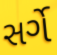
સર્ગે